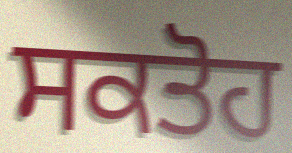
ਸਕਤੋਹ